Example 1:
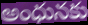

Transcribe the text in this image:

అంధునకు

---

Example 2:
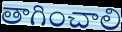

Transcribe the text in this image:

తాగించాలి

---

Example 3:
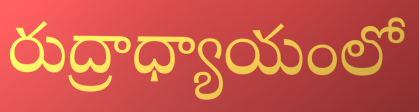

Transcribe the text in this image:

రుద్రాధ్యాయంలో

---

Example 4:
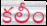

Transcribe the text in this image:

కలీం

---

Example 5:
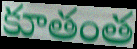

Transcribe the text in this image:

కూతంత